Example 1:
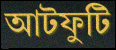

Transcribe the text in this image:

আটফুটি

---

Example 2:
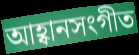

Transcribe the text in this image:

আহ্বানসংগীত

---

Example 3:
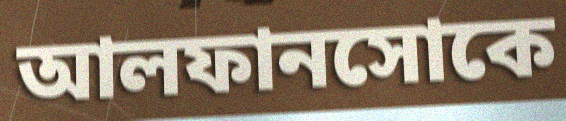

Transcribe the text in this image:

আলফানসোকে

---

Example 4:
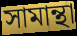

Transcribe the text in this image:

সামান্থা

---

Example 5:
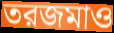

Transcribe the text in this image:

তরজমাও